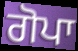
ਗੋਪਾ